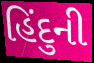
હિંદુની